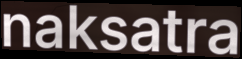
naksatra